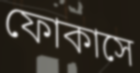
ফোকাসে